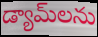
డ్యామ్‌లను